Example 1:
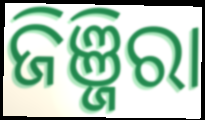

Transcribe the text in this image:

ଜିଞ୍ଜିରା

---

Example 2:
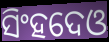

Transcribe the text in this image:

ସିଂହଦେଓ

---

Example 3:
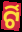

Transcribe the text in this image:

ର୍ଟି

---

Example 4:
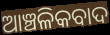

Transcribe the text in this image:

ଆଞ୍ଚଳିକବାଦ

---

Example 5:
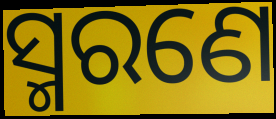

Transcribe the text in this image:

ସ୍ମରଣେ